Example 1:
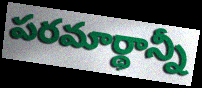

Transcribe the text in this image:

పరమార్థాన్నీ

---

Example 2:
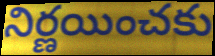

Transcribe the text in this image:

నిర్ణయించకు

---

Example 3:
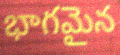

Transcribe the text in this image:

భాగమైన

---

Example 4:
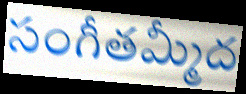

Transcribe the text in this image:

సంగీతమ్మీద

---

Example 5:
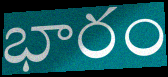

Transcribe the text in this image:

భారం